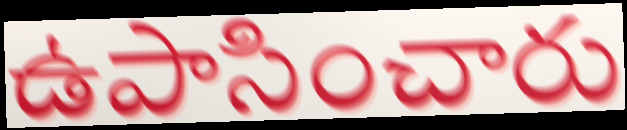
ఉపాసించారు